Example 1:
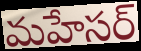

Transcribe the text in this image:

మహేసర్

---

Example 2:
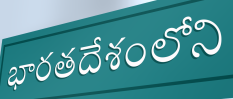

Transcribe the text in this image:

భారతదేశంలోని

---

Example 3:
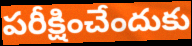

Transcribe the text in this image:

పరీక్షించేందుకు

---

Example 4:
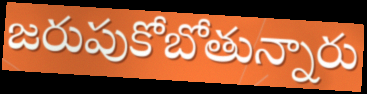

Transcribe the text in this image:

జరుపుకోబోతున్నారు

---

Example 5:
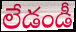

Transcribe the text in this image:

లేడండీ